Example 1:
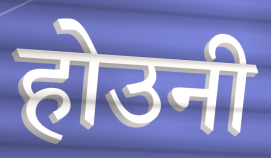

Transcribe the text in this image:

होउनी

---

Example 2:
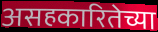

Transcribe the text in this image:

असहकारितेच्या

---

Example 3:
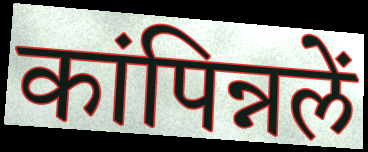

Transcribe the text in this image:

कांपिन्नलें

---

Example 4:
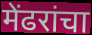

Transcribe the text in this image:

मेंढरांचा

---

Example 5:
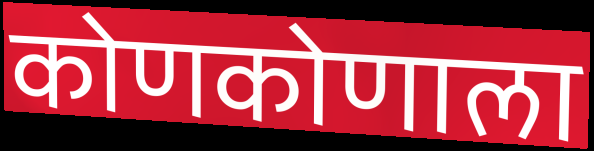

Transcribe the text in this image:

कोणकोणाला